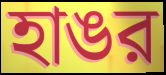
হাঙর